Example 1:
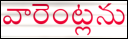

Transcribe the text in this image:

వారెంట్లను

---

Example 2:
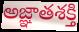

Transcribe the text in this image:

అజ్ఞాతశక్తి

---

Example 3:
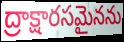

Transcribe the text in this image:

ద్రాక్షారసమైనను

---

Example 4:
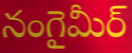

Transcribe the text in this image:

నంగైమీర్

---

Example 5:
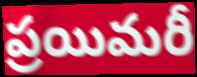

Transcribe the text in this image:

ప్రయిమరీ